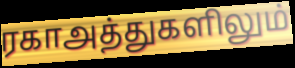
ரகாஅத்துகளிலும்